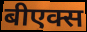
बीएक्स